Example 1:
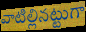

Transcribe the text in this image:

వాటిల్లినట్టుగా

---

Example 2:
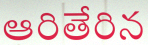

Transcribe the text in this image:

ఆరితేరిన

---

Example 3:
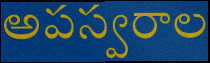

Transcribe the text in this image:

అపస్వరాల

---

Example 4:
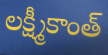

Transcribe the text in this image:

లక్ష్మీకాంత్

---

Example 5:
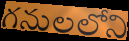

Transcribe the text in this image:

గనులలోని